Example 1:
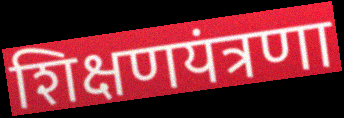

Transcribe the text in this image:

शिक्षणयंत्रणा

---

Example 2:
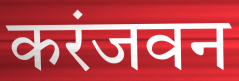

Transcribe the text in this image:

करंजवन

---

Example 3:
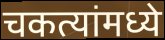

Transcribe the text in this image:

चकत्यांमध्ये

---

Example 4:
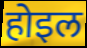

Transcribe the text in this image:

होइल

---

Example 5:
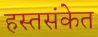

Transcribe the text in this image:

हस्तसंकेत